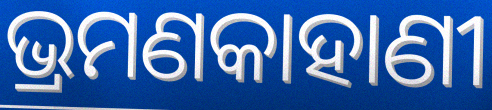
ଭ୍ରମଣକାହାଣୀ